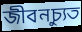
জীবনচ্যুত